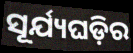
ସୂର୍ଯ୍ୟଘଡ଼ିର